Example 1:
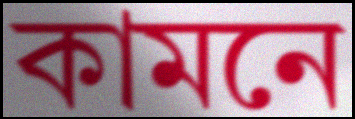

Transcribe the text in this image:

কামনে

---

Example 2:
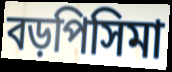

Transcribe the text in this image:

বড়পিসিমা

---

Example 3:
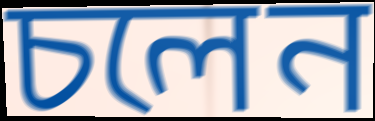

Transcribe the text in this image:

চলেন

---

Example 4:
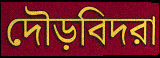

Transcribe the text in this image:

দৌড়বিদরা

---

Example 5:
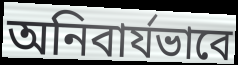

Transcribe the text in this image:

অনিবার্যভাবে